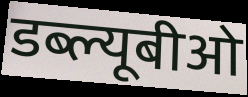
डब्ल्यूबीओ